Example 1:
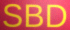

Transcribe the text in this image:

SBD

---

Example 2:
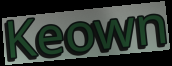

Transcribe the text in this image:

Keown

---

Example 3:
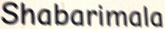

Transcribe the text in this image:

Shabarimala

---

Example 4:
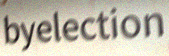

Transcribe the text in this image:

byelection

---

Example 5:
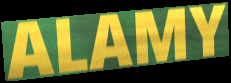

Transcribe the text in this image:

ALAMY